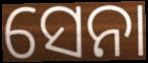
ସେନା